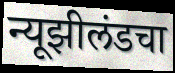
न्यूझीलंडचा